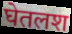
घेतलश